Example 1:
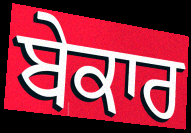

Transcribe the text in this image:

ਬੇਕਾਰ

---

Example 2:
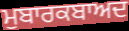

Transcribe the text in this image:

ਮੁਬਾਰਕਬਾਅਦ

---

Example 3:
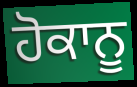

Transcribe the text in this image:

ਹੋਕਾਨੂ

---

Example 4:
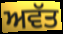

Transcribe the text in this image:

ਅਵੱਤ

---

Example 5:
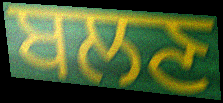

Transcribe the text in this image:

ਬਲਣ